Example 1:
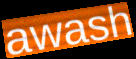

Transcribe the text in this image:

awash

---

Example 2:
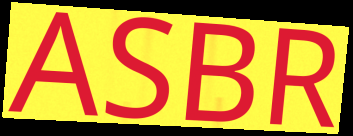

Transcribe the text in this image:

ASBR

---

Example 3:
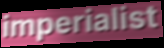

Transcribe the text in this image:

imperialist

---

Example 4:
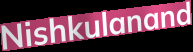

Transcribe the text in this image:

Nishkulanand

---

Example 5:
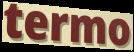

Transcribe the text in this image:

termo